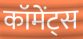
कॉमेंट्स